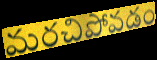
మరచిపోవడం